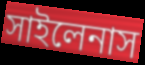
সাইলেনাস